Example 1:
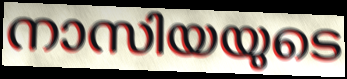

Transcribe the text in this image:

നാസിയയുടെ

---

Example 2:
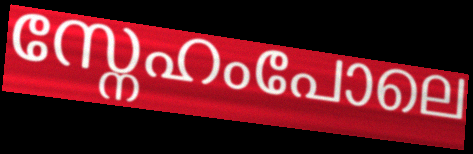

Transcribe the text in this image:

സ്നേഹംപോലെ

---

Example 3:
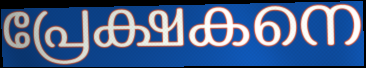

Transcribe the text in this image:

പ്രേക്ഷകനെ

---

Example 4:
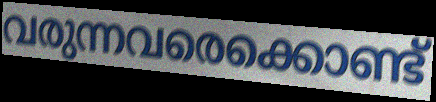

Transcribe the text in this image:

വരുന്നവരെക്കൊണ്ട്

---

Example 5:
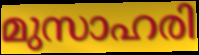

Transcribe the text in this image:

മുസാഹരി